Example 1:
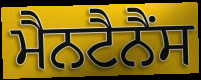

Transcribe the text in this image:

ਮੈਨਟੈਨੈਂਸ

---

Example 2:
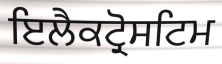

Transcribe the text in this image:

ਇਲੈਕਟ੍ਰੋਸਟਿਮ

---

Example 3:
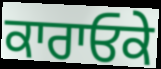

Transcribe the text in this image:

ਕਾਰਾਓਕੇ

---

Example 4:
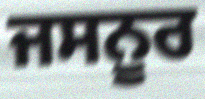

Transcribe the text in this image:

ਜਸਨੂਰ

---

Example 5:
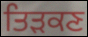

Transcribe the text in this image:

ਤਿੜਕਣ